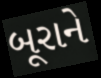
બૂરાને